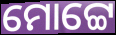
ମୋଟ୍ଟେ